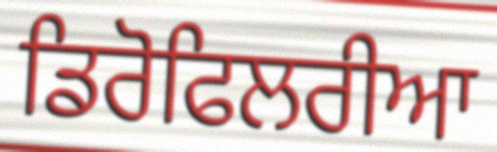
ਡਿਰੋਫਿਲਰੀਆ